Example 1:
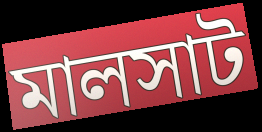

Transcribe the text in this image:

মালসাট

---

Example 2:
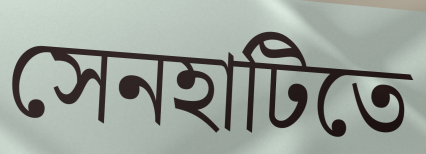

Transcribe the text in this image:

সেনহাটিতে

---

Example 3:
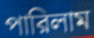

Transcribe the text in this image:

পারিলাম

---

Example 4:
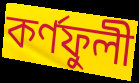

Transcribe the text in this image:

কর্ণফুলী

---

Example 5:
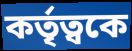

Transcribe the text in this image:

কর্তৃত্বকে